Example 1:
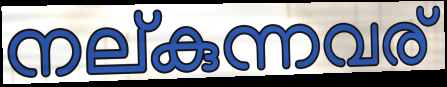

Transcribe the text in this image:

നല്കുന്നവര്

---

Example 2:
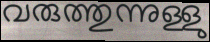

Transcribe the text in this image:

വരുത്തുന്നുള്ളു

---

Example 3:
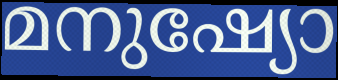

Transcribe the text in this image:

മനുഷ്യോ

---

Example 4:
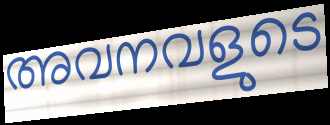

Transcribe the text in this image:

അവനവളുടെ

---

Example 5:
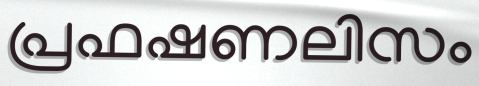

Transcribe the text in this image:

പ്രഫഷണലിസം